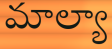
మాల్యా